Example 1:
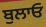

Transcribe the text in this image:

ਬੁਲਾਓ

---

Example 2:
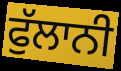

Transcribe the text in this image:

ਫੁੱਲਾਨੀ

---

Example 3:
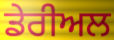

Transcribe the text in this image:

ਡੇਰੀਅਲ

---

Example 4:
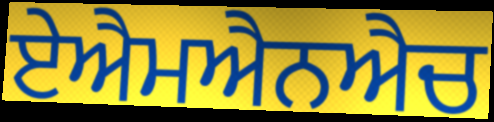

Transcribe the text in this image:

ਏਐਮਐਨਐਚ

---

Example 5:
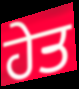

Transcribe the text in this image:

ਹੇਤ